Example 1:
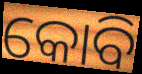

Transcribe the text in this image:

କୋବି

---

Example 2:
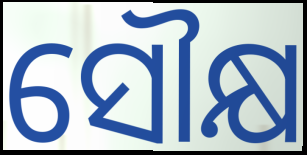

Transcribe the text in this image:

ସୌକ୍ଷ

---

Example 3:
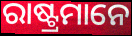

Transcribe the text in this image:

ରାଷ୍ଟ୍ରମାନେ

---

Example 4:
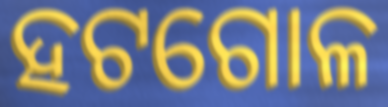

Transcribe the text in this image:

ହଟଗୋଳ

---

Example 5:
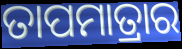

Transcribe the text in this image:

ତାପମାତ୍ରାର